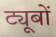
ट्यूबों